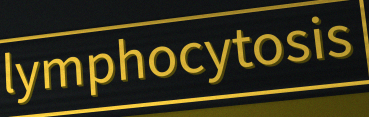
lymphocytosis